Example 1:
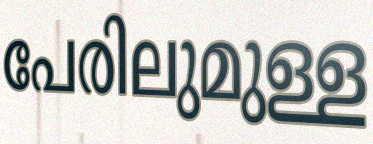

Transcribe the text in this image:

പേരിലുമുള്ള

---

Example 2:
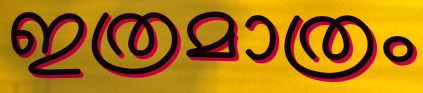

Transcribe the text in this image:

ഇത്രമാത്രം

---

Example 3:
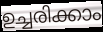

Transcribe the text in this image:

ഉച്ചരിക്കാം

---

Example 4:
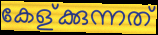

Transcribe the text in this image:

കേള്ക്കുന്നത്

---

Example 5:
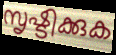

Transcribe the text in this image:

സൃഷ്ടിക്കുക